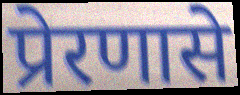
प्रेरणासे